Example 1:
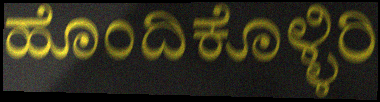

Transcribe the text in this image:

ಹೊಂದಿಕೊಳ್ಳಿರಿ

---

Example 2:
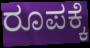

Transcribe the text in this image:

ರೂಪಕ್ಕೆ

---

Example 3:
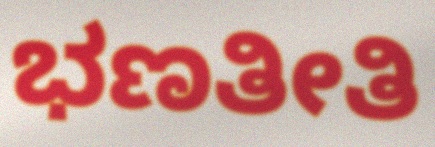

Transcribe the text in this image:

ಭಣತೀತಿ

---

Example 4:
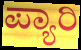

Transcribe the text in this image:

ಪ್ಯಾರಿ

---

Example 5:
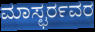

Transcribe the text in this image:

ಮಾಸ್ಟರ್ರವರ